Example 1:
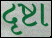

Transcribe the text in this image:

દૃષ્ટા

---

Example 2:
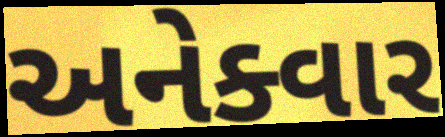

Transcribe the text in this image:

અનેક્વાર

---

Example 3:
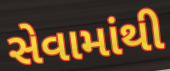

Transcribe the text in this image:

સેવામાંથી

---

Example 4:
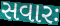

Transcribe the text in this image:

સવારઃ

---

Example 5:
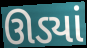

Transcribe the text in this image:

ઊડ્યાં